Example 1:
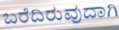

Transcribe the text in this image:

ಬರೆದಿರುವುದಾಗಿ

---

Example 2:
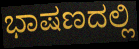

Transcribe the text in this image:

ಭಾಷಣದಲ್ಲಿ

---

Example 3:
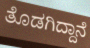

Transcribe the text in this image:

ತೊಡಗಿದ್ದಾನೆ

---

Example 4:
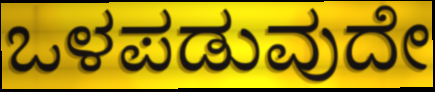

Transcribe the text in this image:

ಒಳಪಡುವುದೇ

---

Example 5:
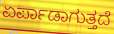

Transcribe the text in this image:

ಏರ್ಪಾಡಾಗುತ್ತದೆ